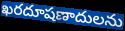
ఖరదూషణాదులను